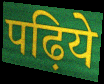
पढ़िये